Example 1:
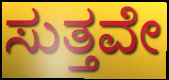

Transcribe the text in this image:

ಸುತ್ತವೇ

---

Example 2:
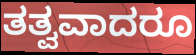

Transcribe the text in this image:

ತತ್ವವಾದರೂ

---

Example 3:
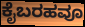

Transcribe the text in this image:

ಕೈಬರಹವೂ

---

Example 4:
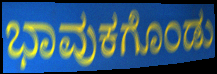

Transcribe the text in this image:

ಭಾವುಕಗೊಂಡು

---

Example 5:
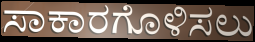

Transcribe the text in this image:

ಸಾಕಾರಗೊಳಿಸಲು